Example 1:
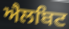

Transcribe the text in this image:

ਐਲਬਿਟ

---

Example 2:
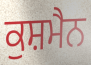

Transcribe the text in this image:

ਕੁਸ਼ਮੈਨ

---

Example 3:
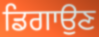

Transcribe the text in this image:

ਡਿਗਾਉਣ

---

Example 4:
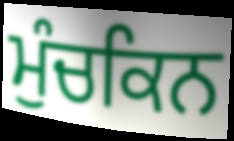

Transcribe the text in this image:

ਮੁੰਚਕਿਨ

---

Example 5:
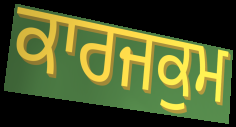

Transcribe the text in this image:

ਕਾਰਜਕੁਮ